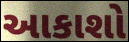
આકાશો